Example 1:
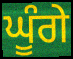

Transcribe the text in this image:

ਘੂੰਗੇ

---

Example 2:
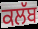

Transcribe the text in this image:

ਕਲੱਬ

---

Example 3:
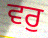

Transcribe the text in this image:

ਵਰੁ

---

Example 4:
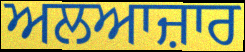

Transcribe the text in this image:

ਅਲਆਜ਼ਾਰ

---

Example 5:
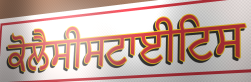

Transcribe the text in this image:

ਕੋਲੈਸੀਸਟਾਈਟਿਸ